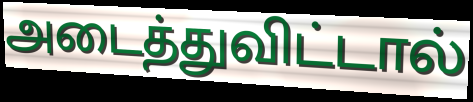
அடைத்துவிட்டால்